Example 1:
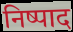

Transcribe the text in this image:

निष्पाद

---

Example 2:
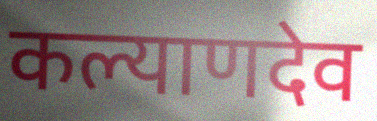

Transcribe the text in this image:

कल्याणदेव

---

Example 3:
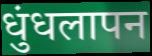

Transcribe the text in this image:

धुंधलापन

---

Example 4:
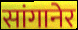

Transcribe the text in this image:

सांगानेर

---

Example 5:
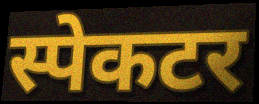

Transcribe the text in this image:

स्पेकटर